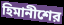
হিমানীশের